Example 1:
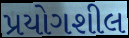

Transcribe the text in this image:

પ્રયોગશીલ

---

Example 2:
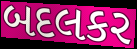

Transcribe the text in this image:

બદલકર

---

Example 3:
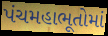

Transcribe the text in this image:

પંચમહાભૂતોમાં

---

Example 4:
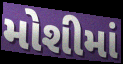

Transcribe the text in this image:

મોશીમાં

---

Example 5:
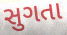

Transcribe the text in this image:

સુગતા